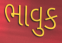
ભાવુક